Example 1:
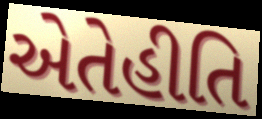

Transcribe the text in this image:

એતેહીતિ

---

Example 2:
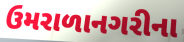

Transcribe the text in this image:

ઉમરાળાનગરીના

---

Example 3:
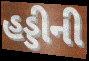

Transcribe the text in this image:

હડ્ડીની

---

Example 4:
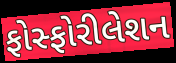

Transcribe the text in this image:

ફોસ્ફોરીલેશન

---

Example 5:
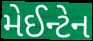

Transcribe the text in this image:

મેઈન્ટેન